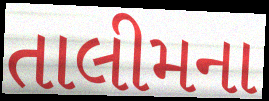
તાલીમના